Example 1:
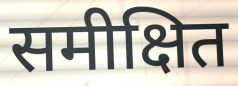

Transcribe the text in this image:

समीक्षित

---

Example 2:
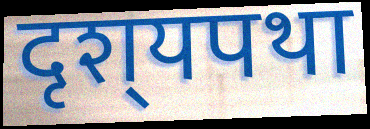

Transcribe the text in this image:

दृश्यपथा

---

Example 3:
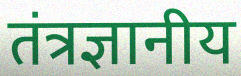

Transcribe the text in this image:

तंत्रज्ञानीय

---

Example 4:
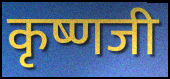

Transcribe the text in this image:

कृष्णजी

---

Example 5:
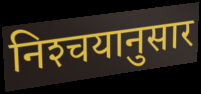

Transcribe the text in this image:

निश्चयानुसार